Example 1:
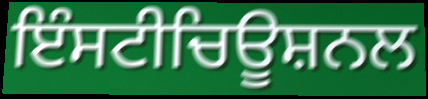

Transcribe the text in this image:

ਇੰਸਟੀਚਿਊਸ਼ਨਲ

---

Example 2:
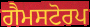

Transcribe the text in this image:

ਗੈਮਸਟੋਰਪ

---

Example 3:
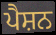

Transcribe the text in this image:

ਪੈਸ਼ਨ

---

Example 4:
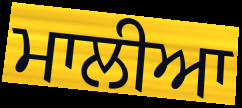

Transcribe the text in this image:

ਮਾਲੀਆ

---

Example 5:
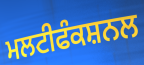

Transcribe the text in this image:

ਮਲਟੀਫੰਕਸ਼ਨਲ